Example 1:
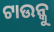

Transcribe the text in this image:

ଟାଉନ୍କୁ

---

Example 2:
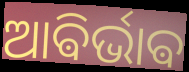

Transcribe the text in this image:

ଆଵିର୍ଭାଵ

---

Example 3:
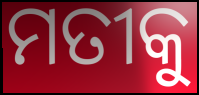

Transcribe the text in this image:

ମତୀକୁ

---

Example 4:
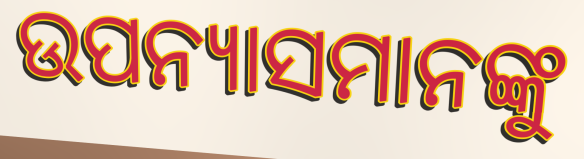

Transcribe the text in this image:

ଉପନ୍ୟାସମାନଙ୍କୁ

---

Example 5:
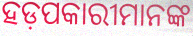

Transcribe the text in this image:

ହଡ଼ପକାରୀମାନଙ୍କ